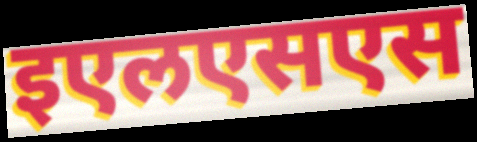
इएलएसएस